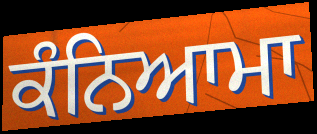
ਕੰਨਿਆਮਾ